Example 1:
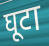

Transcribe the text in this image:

घूटा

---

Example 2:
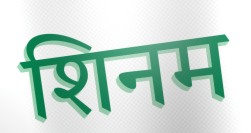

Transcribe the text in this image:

शिनम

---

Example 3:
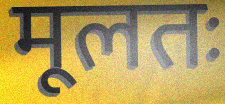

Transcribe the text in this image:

मूलतः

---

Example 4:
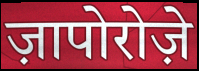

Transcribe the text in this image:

ज़ापोरोज़े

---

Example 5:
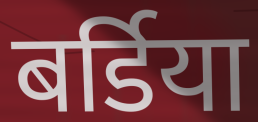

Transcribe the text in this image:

बर्डिया